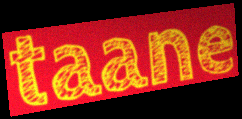
taane